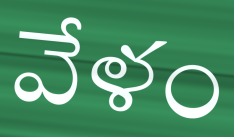
వేళం